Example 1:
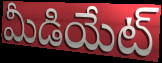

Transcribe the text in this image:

మీడియేట్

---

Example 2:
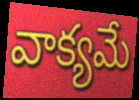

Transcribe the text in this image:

వాక్యమే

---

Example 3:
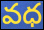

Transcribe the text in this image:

వధ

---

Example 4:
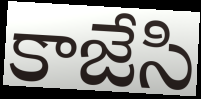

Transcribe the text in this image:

కాజేసి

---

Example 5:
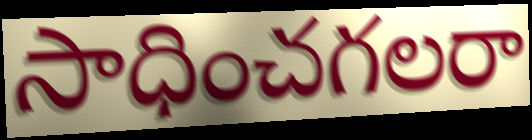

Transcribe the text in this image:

సాధించగలరా